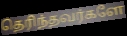
தெரிந்தவர்களே